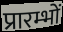
प्रारम्भों